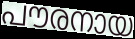
പൗരനായ